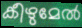
കീഴുമേൽ